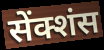
सेंक्शंस